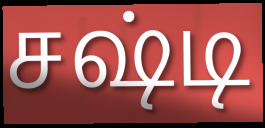
சஷ்டி